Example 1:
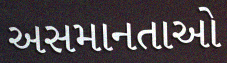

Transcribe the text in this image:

અસમાનતાઓ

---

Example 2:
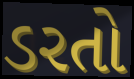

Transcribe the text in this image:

ડરતો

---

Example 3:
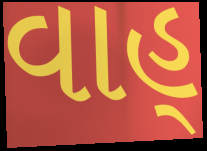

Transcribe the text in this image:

વાહ્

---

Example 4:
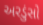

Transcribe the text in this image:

અરડુંસો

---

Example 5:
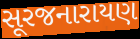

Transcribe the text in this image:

સૂરજનારાયણ